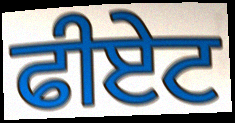
ਫੀਏਟ